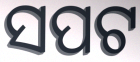
ସପଟ